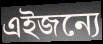
এইজন্যে